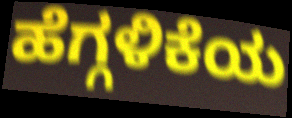
ಹೆಗ್ಗಳಿಕೆಯ